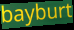
bayburt